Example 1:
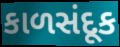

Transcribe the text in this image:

કાળસંદૂક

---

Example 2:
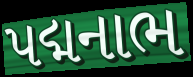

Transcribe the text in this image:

પદ્મનાભ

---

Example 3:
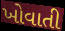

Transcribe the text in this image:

ખોવાતી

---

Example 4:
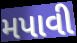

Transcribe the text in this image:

મપાવી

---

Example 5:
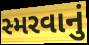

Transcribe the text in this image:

સ્મરવાનું